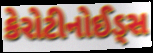
કેરોટીનોઈડ્સ